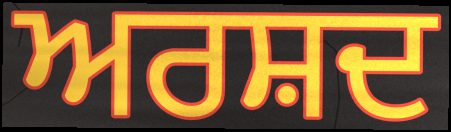
ਅਰਸ਼ਦ